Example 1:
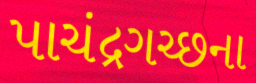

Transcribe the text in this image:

પાચંદ્રગચ્છના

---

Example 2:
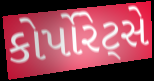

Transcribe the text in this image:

કોર્પોરેટ્સે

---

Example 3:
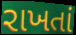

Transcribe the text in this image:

રાખતાં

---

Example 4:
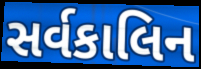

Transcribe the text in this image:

સર્વકાલિન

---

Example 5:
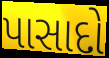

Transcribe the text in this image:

પાસાદો